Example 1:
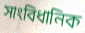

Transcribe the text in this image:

সাংবিধানিক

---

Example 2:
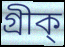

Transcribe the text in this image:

গ্ৰীক্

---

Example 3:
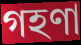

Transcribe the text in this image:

গহণা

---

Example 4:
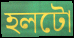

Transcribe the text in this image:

হলটো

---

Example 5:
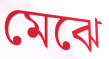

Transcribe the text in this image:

মেঝে